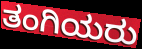
ತಂಗಿಯರು